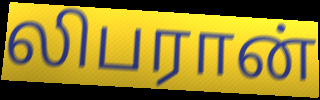
லிபரான்